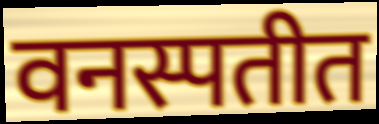
वनस्पतीत